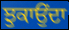
ਝੁਕਾਉਂਦਾ